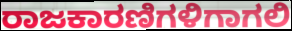
ರಾಜಕಾರಣಿಗಳಿಗಾಗಲಿ